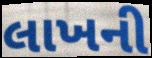
લાખની